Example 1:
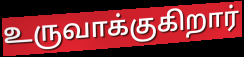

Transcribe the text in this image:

உருவாக்குகிறார்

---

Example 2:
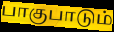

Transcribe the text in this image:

பாகுபாடும்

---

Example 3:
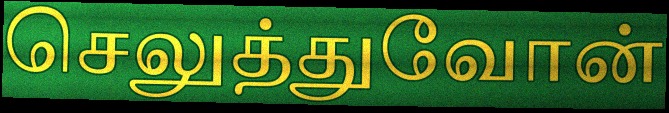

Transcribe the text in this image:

செலுத்துவோன்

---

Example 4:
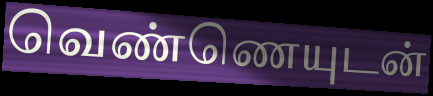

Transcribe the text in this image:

வெண்ணெயுடன்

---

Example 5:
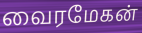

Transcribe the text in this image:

வைரமேகன்